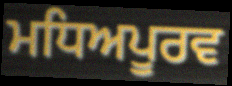
ਮਧਿਅਪੂਰਵ